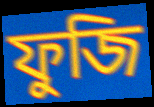
ফুজি